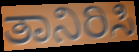
ತಾನಿರಿಸಿ